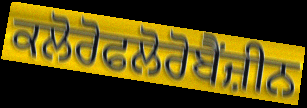
ਕਲੋਰੋਫਲੋਰੋਬੈਂਜ਼ੀਨ